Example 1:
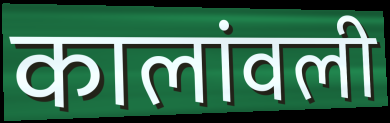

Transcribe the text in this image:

कालांवली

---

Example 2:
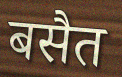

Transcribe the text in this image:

बसैत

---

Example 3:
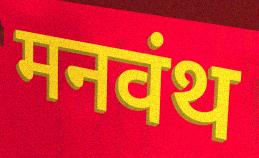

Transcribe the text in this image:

मनवंथ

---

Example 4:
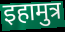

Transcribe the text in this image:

इहामुत्र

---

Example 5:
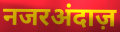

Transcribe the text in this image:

नजरअंदाज़